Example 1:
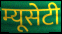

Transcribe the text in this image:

म्यूसेटी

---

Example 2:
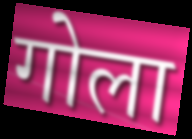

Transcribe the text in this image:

गोला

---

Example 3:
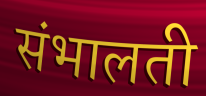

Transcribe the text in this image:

संभालती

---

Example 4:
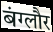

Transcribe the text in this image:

बंग्लौर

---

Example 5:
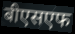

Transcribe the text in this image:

बीएसएफ